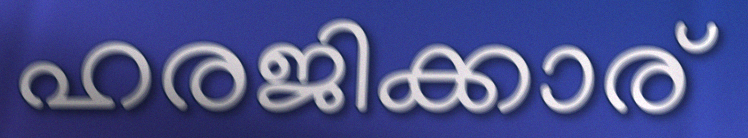
ഹരജിക്കാര്